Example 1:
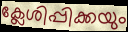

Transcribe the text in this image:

ക്ലേശിപ്പിക്കയും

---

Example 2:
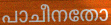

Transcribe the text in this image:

പാചീനതോ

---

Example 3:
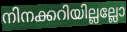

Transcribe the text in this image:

നിനക്കറിയില്ലല്ലോ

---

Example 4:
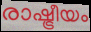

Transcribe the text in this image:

രാഷ്ട്രീയം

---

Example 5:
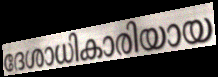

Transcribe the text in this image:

ദേശാധികാരിയായ